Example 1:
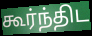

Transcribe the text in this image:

கூர்ந்திட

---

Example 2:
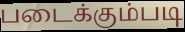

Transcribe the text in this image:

படைக்கும்படி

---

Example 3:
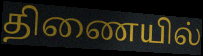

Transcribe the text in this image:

திணையில்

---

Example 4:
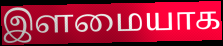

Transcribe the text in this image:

இளமையாக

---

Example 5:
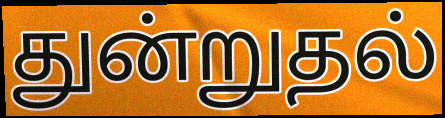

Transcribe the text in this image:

துன்றுதல்